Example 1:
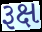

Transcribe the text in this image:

રૂક્ષ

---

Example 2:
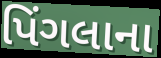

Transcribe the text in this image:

પિંગલાના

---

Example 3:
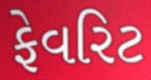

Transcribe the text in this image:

ફેવરિટ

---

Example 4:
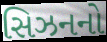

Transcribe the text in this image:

સિઝનનો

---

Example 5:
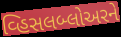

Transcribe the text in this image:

વ્હિસલબ્લોઅરને